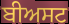
ਬੀਅਸਟ